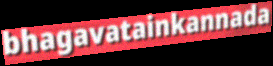
bhagavatainkannada